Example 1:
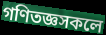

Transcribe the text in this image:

গণিতজ্ঞসকলে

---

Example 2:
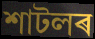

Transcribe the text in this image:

শাটলৰ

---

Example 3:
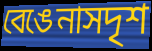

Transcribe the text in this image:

বেঙেনাসদৃশ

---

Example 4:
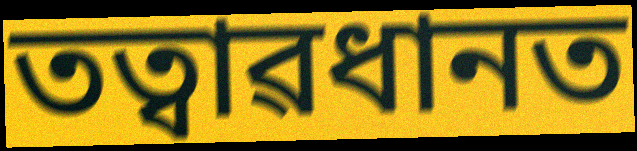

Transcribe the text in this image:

তত্বাৱধানত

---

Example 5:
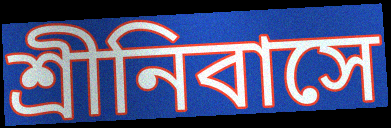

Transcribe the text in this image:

শ্ৰীনিবাসে